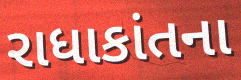
રાધાકાંતના